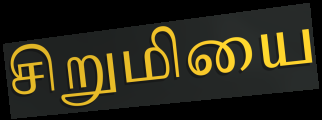
சிறுமியை